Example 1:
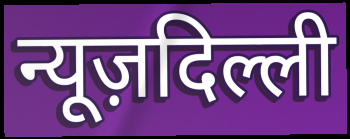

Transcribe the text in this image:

न्यूज़दिल्ली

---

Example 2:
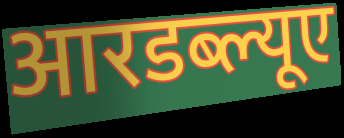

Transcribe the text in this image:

आरडब्ल्यूए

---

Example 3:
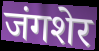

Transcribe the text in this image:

जंगशेर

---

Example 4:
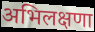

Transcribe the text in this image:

अभिलक्षणा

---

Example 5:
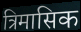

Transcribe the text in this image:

त्रिमासिक